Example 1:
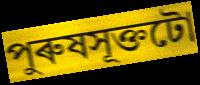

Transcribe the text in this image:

পুৰুষসূক্তটো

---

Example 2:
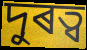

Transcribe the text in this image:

দুৰত্ব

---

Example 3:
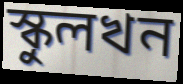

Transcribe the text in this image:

স্কুলখন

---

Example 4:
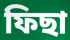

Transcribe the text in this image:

ফিছা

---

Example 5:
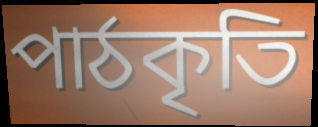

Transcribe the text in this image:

পাঠকৃতি